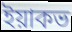
ইয়াকভ